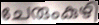
ചേരുംകുഴി